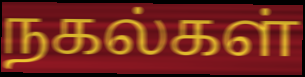
நகல்கள்